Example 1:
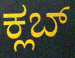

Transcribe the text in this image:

ಕ್ಲಬ್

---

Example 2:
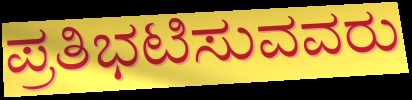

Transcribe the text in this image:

ಪ್ರತಿಭಟಿಸುವವರು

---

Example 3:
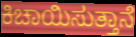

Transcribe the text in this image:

ಕಿಚಾಯಿಸುತ್ತಾನೆ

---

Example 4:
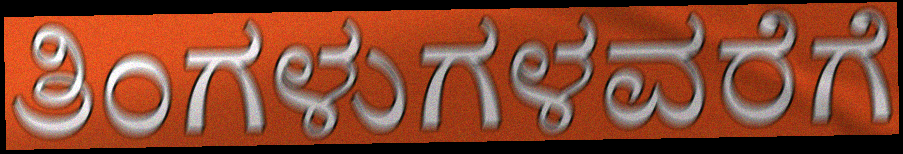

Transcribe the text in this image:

ತಿಂಗಳುಗಳವರೆಗೆ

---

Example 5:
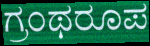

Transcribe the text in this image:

ಗ್ರಂಥರೂಪ